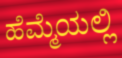
ಹೆಮ್ಮೆಯಲ್ಲಿ